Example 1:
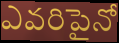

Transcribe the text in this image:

ఎవరిపైనో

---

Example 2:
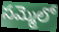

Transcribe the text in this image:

సమ్మెలో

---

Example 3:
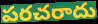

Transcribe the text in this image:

పరచరాదు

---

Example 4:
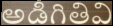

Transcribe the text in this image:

అడిగితివి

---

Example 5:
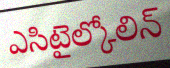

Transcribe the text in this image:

ఎసిటైల్కోలిన్